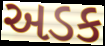
અડક